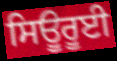
ਸਿਊਰੂਈ